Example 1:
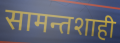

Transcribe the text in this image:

सामन्तशाही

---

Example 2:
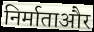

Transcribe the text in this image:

निर्माताऔर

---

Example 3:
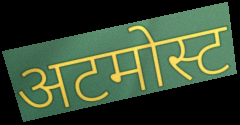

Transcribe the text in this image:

अटमोस्ट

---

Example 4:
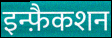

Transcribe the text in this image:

इन्फ़ैकशन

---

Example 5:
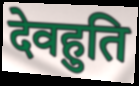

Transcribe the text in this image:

देवहुति